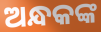
ଅନ୍ଧକଙ୍କ